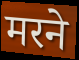
मरने